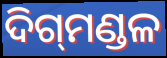
ଦିଗ୍‍ମଣ୍ଡଳ